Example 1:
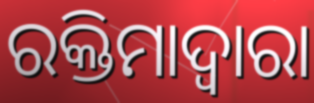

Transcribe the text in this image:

ରକ୍ତିମାଦ୍ୱାରା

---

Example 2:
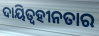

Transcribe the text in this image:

ଦାୟିତ୍ଵହୀନତାର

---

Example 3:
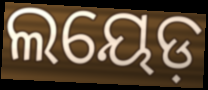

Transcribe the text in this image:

ଲୟେଡ଼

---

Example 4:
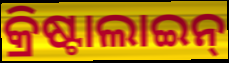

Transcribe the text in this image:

କ୍ରିଷ୍ଟାଲାଇନ୍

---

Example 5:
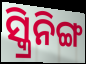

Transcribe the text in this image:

ସ୍କ୍ରିନିଙ୍ଗ